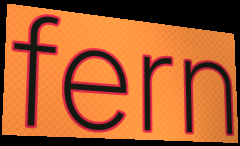
fern